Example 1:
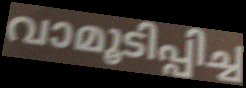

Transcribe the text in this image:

വാമൂടിപ്പിച്ച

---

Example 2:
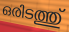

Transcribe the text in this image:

ഒരിടത്തു്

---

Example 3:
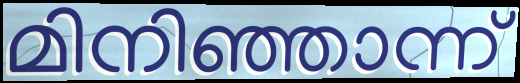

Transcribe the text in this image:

മിനിഞ്ഞാന്ന്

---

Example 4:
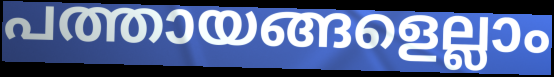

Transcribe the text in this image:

പത്തായങ്ങളെല്ലാം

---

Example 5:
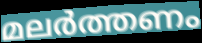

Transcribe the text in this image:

മലർത്തണം